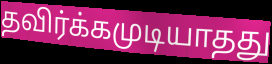
தவிர்க்கமுடியாதது